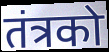
तंत्रको